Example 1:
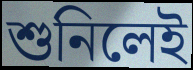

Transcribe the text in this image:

শুনিলেই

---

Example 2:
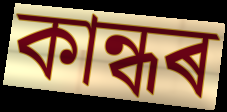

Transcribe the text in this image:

কান্ধৰ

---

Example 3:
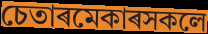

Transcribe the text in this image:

চেতাৰমেকাৰসকলে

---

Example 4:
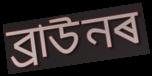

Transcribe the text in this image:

ব্ৰাউনৰ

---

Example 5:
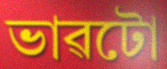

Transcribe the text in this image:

ভাৱটো